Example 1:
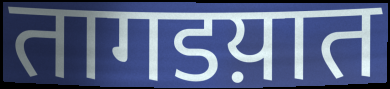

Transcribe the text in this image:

तागडय़ात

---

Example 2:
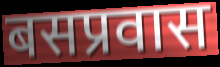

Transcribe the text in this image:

बसप्रवास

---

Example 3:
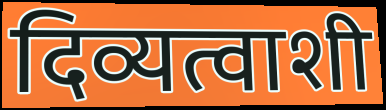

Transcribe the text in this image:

दिव्यत्वाशी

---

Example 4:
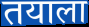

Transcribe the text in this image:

तयाला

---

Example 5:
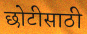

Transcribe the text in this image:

छोटीसाठी